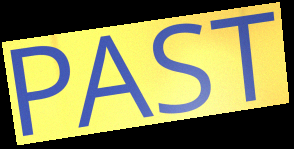
PAST